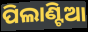
ପିଲାଣ୍ଟିଆ